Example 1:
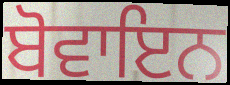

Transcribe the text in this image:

ਬੋਵਾਇਨ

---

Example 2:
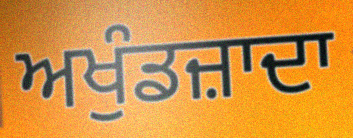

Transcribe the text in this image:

ਅਖੁੰਡਜ਼ਾਦਾ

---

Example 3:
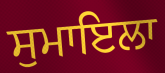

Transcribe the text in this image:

ਸੁਮਾਇਲਾ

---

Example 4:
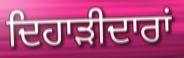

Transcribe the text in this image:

ਦਿਹਾੜੀਦਾਰਾਂ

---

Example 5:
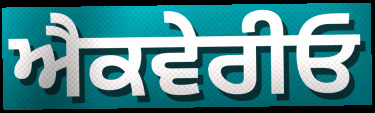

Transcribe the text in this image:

ਐਕਵੇਰੀਓ